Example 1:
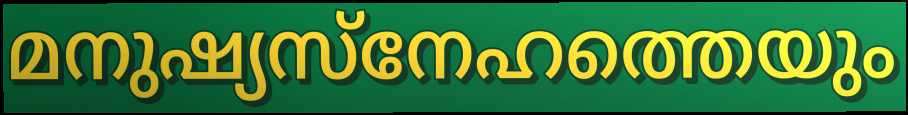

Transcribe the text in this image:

മനുഷ്യസ്നേഹത്തെയും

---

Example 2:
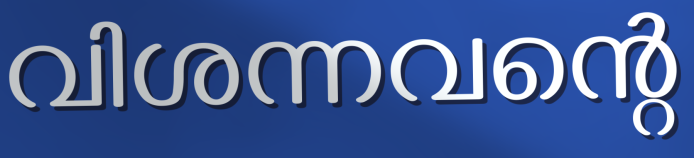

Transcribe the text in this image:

വിശന്നവന്റെ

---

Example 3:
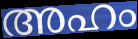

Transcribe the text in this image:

അഹം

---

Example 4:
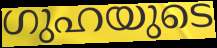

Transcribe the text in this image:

ഗുഹയുടെ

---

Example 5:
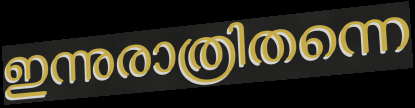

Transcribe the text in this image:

ഇന്നുരാത്രിതന്നെ